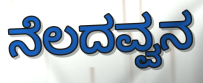
ನೆಲದವ್ವನ